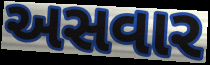
અસવાર